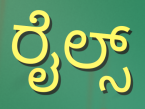
ರೈಲ್ಸ್